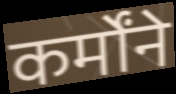
कर्मोंने